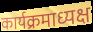
कार्यक्रमाध्यक्ष